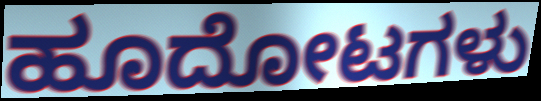
ಹೂದೋಟಗಳು